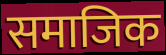
समाजिक